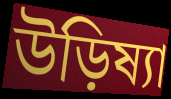
উড়িষ্যা